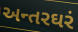
અન્તરઘરં